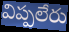
విప్పలేరు